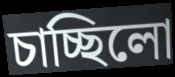
চাচ্ছিলো